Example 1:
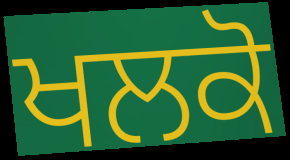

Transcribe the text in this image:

ਖਲਕੋ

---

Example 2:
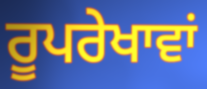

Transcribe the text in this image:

ਰੂਪਰੇਖਾਵਾਂ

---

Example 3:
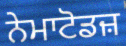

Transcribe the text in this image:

ਨੇਮਾਟੋਡਜ਼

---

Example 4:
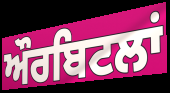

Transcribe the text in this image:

ਔਰਬਿਟਲਾਂ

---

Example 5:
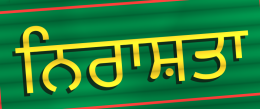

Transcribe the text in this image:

ਨਿਰਾਸ਼ਤਾ